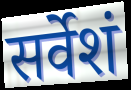
सर्वेशं